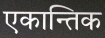
एकान्तिक